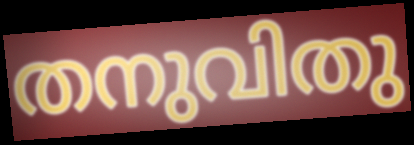
തനുവിതു